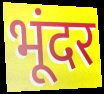
भूंदर